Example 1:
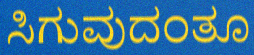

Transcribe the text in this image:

ಸಿಗುವುದಂತೂ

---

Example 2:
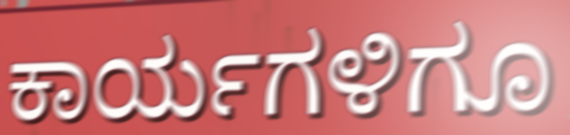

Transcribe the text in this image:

ಕಾರ್ಯಗಳಿಗೂ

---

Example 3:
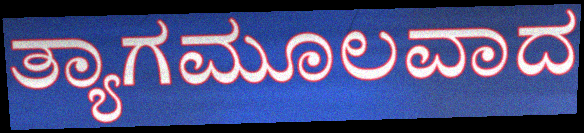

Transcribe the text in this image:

ತ್ಯಾಗಮೂಲವಾದ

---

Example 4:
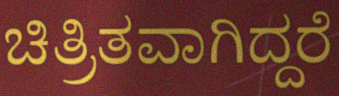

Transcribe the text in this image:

ಚಿತ್ರಿತವಾಗಿದ್ದರೆ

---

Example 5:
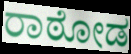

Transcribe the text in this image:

ರಾಠೋಡ